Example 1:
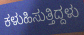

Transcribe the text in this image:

ಕಳುಹಿಸುತ್ತಿದ್ದಳು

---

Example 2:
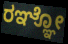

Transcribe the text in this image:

ರಞ್ಞೋ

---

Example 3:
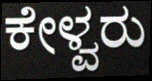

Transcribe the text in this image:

ಕೇಳ್ವರು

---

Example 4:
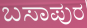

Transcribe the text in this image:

ಬಸಾಪುರ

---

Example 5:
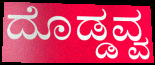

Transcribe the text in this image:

ದೊಡ್ಡವ್ವ